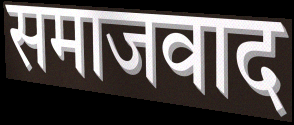
समाजवाद